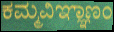
ಕಮ್ಮವಿಞ್ಞಾಣಂ